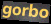
gorbo